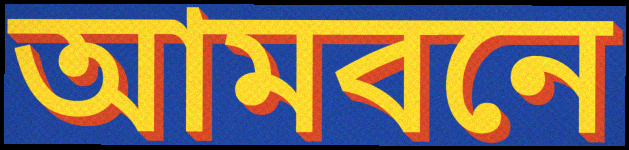
আমবনে